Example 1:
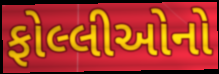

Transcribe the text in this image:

ફોલ્લીઓનો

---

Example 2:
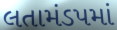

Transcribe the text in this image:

લતામંડપમાં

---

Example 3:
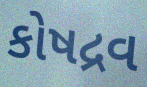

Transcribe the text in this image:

કોષદ્રવ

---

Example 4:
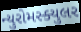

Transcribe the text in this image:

ન્યુરોમસ્ક્યુલર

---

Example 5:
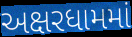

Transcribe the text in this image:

અક્ષરધામમાં